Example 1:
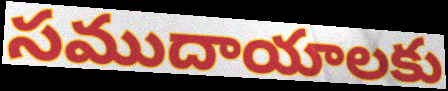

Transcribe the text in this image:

సముదాయాలకు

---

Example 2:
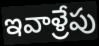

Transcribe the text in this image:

ఇవాళ్రేపు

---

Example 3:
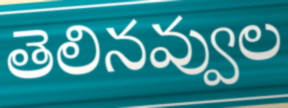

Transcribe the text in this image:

తెలినవ్వుల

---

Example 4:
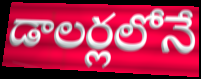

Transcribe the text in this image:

డాలర్లలోనే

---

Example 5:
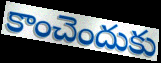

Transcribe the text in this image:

కాంచెందుకు